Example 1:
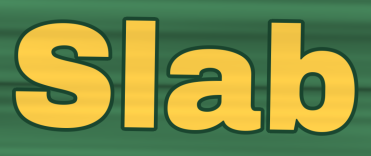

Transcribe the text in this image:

Slab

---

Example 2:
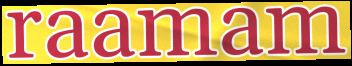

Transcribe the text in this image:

raamam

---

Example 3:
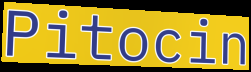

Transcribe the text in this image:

Pitocin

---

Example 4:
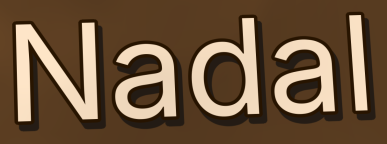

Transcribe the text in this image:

Nadal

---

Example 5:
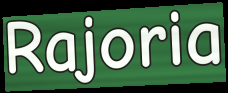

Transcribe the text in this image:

Rajoria